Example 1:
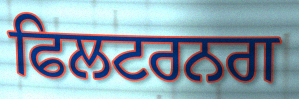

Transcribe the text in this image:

ਫਿਲਟਰਨਗ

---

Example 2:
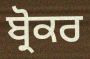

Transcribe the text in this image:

ਬ੍ਰੋਕਰ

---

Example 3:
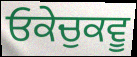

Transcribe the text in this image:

ਓਕੇਚੁਕਵੂ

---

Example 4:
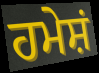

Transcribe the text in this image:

ਹਮੇਸ਼ਂ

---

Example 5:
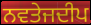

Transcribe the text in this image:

ਨਵਤੇਜਦੀਪ